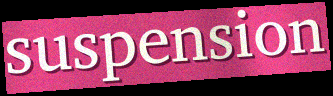
suspension